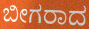
ಬೀಗರಾದ